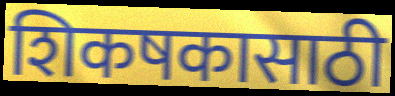
शिकषकासाठी